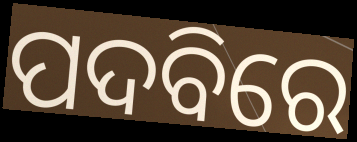
ପଦବିରେ